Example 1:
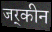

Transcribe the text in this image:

जर्कीन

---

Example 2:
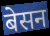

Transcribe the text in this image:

बेसन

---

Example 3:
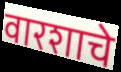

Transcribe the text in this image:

वारशाचे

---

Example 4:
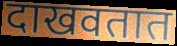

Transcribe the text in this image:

दाखवतात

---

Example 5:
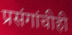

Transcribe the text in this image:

प्रसंगांचीही